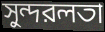
সুন্দরলতা